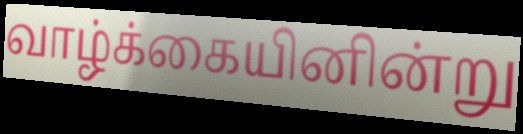
வாழ்க்கையினின்று